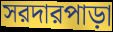
সরদারপাড়া